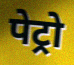
पेट्रो